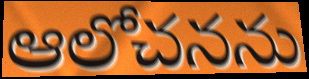
ఆలోచనను